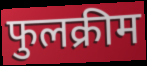
फुलक्रीम